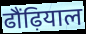
ढौंढ़ियाल